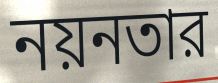
নয়নতার